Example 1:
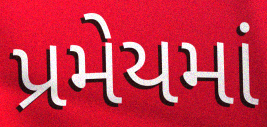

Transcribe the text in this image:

પ્રમેયમાં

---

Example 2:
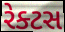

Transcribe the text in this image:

રેક્ટસ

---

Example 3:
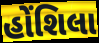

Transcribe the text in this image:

હોંશિલા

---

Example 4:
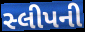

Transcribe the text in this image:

સ્લીપની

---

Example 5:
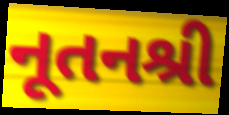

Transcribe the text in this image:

નૂતનશ્રી